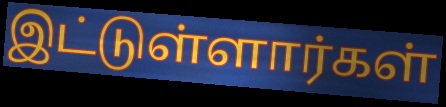
இட்டுள்ளார்கள்